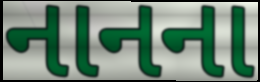
નાનના